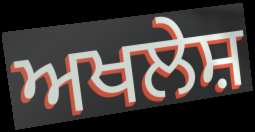
ਅਖਲੇਸ਼